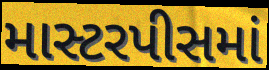
માસ્ટરપીસમાં